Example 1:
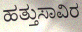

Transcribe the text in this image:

ಹತ್ತುಸಾವಿರ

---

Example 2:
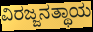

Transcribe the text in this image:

ವಿರಜ್ಜನತ್ಥಾಯ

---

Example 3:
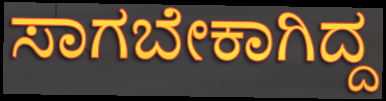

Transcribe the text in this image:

ಸಾಗಬೇಕಾಗಿದ್ದ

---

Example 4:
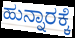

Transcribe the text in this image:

ಹುನ್ನಾರಕ್ಕೆ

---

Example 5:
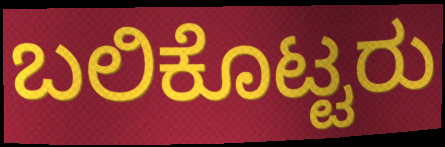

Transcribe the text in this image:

ಬಲಿಕೊಟ್ಟರು